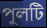
পুলটি